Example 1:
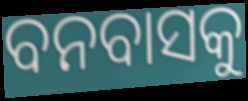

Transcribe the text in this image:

ବନବାସକୁ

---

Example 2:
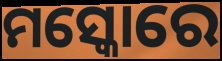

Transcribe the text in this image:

ମସ୍କୋରେ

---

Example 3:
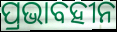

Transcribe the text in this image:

ପ୍ରଭାବହୀନ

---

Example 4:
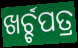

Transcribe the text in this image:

ଖର୍ଚ୍ଚପତ୍ର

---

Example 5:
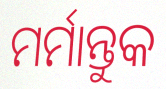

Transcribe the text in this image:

ମର୍ମାନ୍ତୁକ